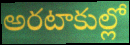
అరటాకుల్లో